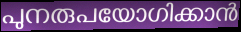
പുനരുപയോഗിക്കാൻ